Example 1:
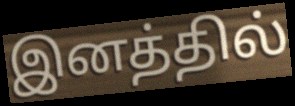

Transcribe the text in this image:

இனத்தில்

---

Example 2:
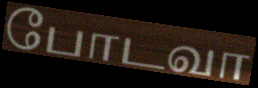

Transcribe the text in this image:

போடவா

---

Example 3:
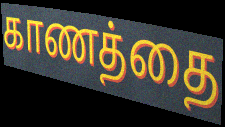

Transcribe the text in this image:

காணத்தை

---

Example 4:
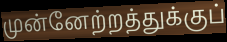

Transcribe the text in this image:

முன்னேற்றத்துக்குப்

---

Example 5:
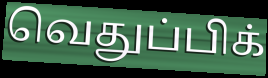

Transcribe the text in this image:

வெதுப்பிக்